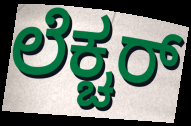
ಲೆಕ್ಚರ್